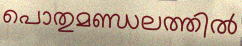
പൊതുമണ്ഡലത്തിൽ